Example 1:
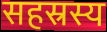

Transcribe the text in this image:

सहस्रस्य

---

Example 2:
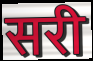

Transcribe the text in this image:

सरी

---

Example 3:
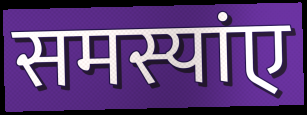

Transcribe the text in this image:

समस्यांए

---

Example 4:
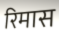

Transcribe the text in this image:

रिमास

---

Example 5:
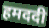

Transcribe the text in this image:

हमददी